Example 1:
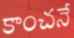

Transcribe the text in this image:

కాంచనే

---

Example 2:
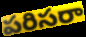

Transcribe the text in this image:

పరిసరా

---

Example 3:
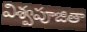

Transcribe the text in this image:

విశ్వపూజితా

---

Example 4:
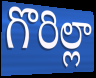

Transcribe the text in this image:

గొరిల్లా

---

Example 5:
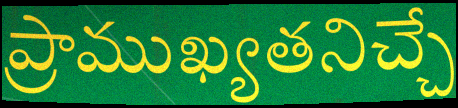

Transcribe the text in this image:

ప్రాముఖ్యతనిచ్చే